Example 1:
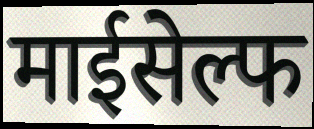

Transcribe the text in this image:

माईसेल्फ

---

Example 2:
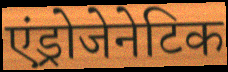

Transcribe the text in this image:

एंड्रोजेनेटिक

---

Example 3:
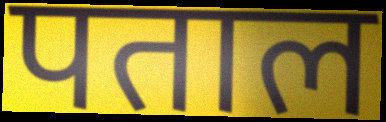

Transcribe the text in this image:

पताल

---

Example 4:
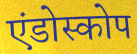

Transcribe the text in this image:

एंडोस्कोप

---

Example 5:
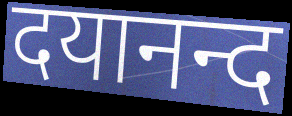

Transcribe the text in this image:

दयानन्द